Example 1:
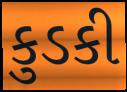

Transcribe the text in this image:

કુડકી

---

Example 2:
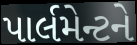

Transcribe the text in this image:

પાર્લમેન્ટને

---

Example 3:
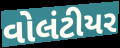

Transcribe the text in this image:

વોલંટીયર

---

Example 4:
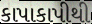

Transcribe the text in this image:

કાપાકાપીથી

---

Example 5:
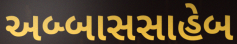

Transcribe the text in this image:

અબ્બાસસાહેબ